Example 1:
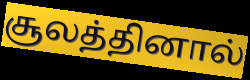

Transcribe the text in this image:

சூலத்தினால்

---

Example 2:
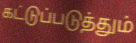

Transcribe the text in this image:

கட்டுப்படுத்தும்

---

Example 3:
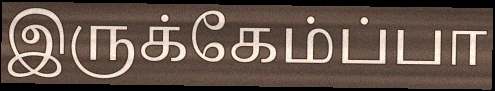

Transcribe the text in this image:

இருக்கேம்ப்பா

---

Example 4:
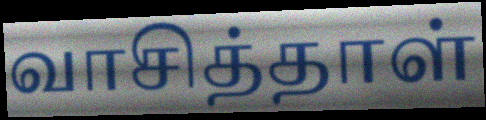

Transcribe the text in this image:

வாசித்தாள்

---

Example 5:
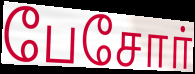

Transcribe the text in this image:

பேசோர்